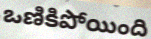
ఒణికిపోయింది